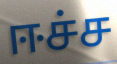
ஈச்ச